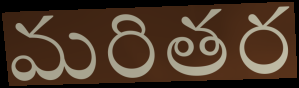
మరితర